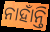
ନାହାଁନ୍ତି